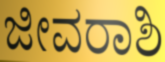
ಜೀವರಾಶಿ